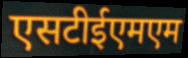
एसटीईएमएम